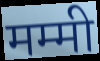
मम्मी